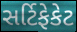
સર્ટિફેકેટ